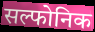
सल्फोनिक